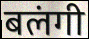
बलंगी